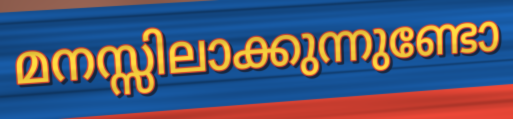
മനസ്സിലാക്കുന്നുണ്ടോ